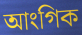
আংগিক